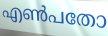
എൺപതോ